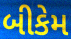
બીકેમ